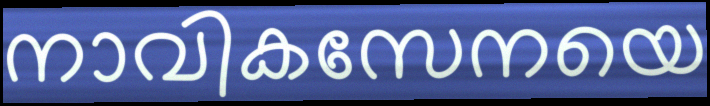
നാവികസേനയെ